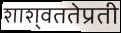
शाश्वततेप्रती